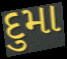
દુમા